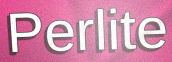
Perlite